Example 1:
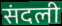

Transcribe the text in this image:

संदली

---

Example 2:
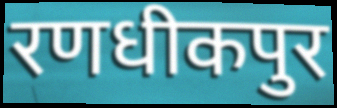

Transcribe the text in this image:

रणधीकपुर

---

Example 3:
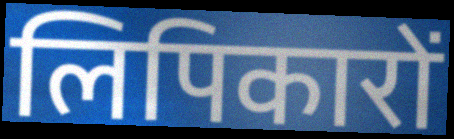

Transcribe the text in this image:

लिपिकारों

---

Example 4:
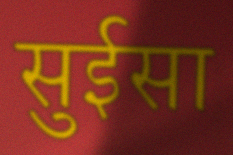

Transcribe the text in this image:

सुईसा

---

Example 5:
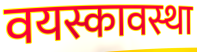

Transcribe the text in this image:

वयस्कावस्था